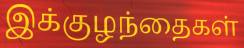
இக்குழந்தைகள்